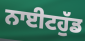
ਨਾਈਟਹੁੱਡ